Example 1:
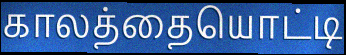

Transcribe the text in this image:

காலத்தையொட்டி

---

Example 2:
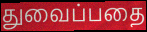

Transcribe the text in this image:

துவைப்பதை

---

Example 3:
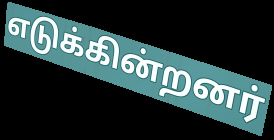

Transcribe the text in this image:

எடுக்கின்றனர்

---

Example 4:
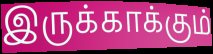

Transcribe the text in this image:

இருக்காக்கும்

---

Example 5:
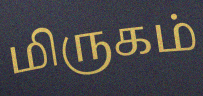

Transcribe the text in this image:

மிருகம்